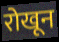
रोखून